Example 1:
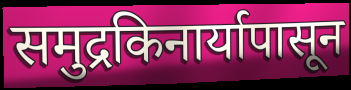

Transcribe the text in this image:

समुद्रकिनार्यापासून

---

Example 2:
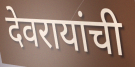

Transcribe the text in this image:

देवरायांची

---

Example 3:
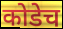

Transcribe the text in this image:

कोडेच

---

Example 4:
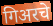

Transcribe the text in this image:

गिअरचे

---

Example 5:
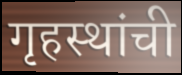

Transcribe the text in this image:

गृहस्थांची